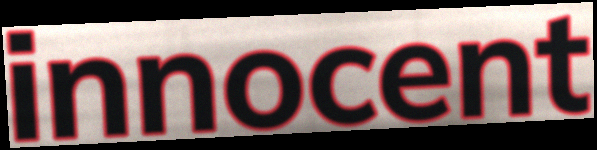
innocent